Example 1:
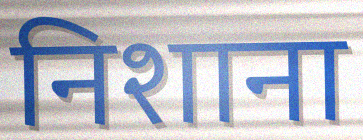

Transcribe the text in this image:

निशाना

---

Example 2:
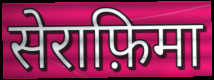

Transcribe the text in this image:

सेराफ़िमा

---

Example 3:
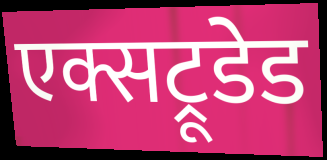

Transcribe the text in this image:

एक्सट्रूडेड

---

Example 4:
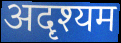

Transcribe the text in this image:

अदृश्यम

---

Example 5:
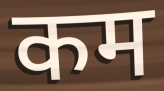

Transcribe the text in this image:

कम